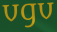
ugu